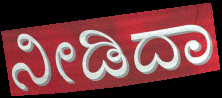
ನೀಡಿದಾ